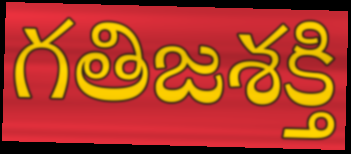
గతిజశక్తి